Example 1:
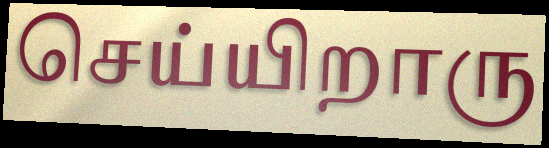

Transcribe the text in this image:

செய்யிறாரு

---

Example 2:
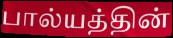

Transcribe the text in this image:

பால்யத்தின்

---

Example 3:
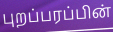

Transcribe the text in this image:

புறப்பரப்பின்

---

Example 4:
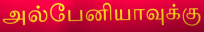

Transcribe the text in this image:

அல்பேனியாவுக்கு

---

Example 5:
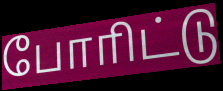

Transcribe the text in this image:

போரிட்டு